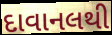
દાવાનલથી